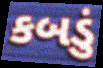
કબડું